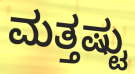
ಮತ್ತಷ್ಟು